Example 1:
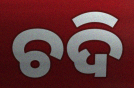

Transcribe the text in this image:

ଚଦି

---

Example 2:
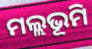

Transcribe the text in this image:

ମଲ୍ଲଭୂମି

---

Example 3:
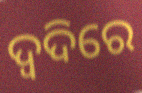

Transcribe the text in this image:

ଦ୍ଵଦିରେ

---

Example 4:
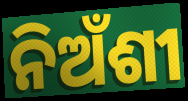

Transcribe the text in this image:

ନିଅଁଶୀ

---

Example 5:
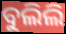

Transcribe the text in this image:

ବୁଲିଲି